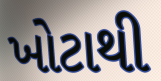
ખોટાથી